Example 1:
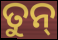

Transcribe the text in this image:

ତୁନ୍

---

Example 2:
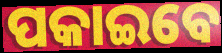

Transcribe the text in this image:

ପକାଇବେ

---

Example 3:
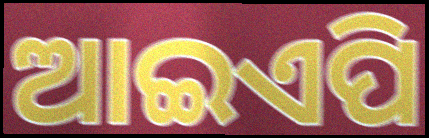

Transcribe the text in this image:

ଆଇଏପି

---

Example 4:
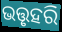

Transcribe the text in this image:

ଭତ୍ତୃହରି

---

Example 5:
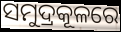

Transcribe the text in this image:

ସମୁଦ୍ରକୂଳରେ